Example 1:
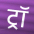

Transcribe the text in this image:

ट्रॉ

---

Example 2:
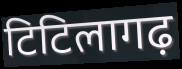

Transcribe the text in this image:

टिटिलागढ़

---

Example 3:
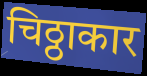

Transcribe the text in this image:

चिठ्ठाकार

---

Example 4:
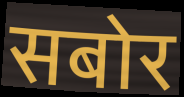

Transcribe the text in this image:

सबोर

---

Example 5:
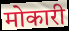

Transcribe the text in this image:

मोकारी